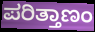
ಪರಿತ್ತಾಣಂ